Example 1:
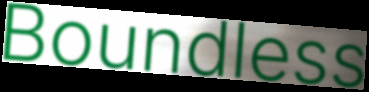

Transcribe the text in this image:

Boundless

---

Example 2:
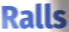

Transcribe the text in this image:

Ralls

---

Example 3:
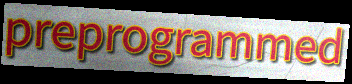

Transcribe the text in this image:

preprogrammed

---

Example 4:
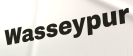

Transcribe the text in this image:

Wasseypur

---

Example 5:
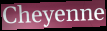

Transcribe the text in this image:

Cheyenne